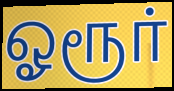
ஓரூர்